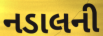
નડાલની